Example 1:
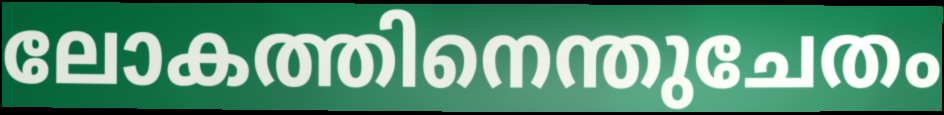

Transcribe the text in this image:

ലോകത്തിനെന്തുചേതം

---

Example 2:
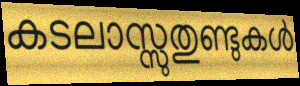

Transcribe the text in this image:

കടലാസ്സുതുണ്ടുകൾ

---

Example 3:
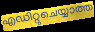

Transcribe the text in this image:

എഡിറ്റുചെയ്യാത്ത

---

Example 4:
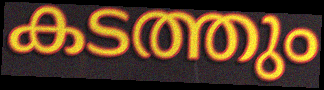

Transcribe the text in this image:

കടത്തും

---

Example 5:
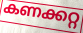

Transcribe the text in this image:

കണക്കറ്റ